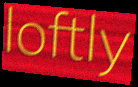
loftly